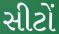
સીટોં